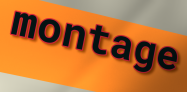
montage